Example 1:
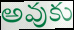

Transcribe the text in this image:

అవుకు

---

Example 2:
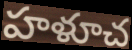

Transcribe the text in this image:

హళూచ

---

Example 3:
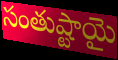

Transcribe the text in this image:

సంతుష్టాయై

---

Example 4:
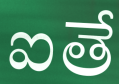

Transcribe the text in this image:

ఐతే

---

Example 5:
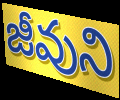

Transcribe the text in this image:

జీవుని